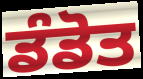
ਡੰਡੋਤ